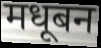
मधूबन